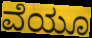
ವೆಯೂ